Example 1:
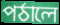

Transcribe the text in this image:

পঠালে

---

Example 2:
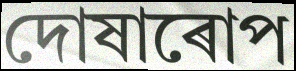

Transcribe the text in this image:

দোষাৰোপ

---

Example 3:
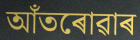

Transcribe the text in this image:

আঁতৰোৱাৰ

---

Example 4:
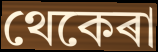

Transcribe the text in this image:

থেকেৰা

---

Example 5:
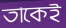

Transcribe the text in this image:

তাকেই